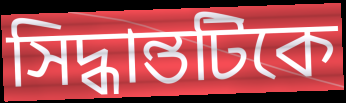
সিদ্ধান্তটিকে